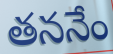
తననేం